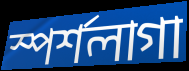
স্পর্শলাগা